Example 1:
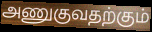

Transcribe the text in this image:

அணுகுவதற்கும்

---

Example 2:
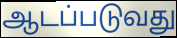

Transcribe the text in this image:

ஆடப்படுவது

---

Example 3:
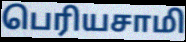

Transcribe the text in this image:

பெரியசாமி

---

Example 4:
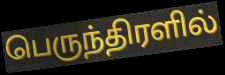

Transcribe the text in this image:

பெருந்திரளில்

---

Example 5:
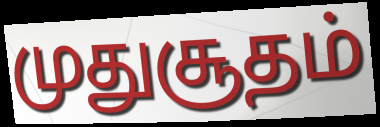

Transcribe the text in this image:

முதுசூதம்